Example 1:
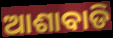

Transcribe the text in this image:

ଆଶାବାଡି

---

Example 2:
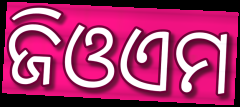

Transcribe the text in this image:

ଜିଓଏମ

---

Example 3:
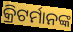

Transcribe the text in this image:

କ୍ରିଟର୍ମାନଙ୍କ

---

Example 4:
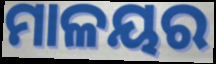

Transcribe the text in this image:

ମାଳୟର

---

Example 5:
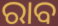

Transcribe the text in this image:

ରାବ